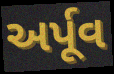
અર્પૂવ